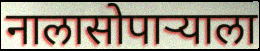
नालासोपाऱ्याला